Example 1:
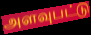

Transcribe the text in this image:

அளவுபட்டு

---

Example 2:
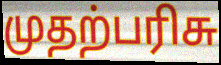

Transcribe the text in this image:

முதற்பரிசு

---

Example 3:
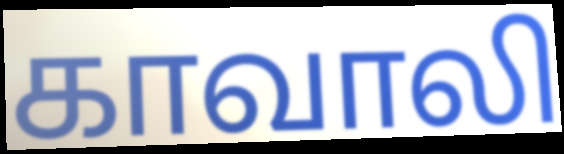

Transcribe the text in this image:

காவாலி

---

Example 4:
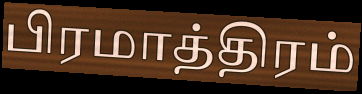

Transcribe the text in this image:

பிரமாத்திரம்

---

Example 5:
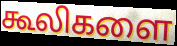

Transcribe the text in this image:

கூலிகளை